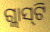
ଗ୍ଲାସ୍‍ଟି